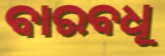
ବାରବଧୂ